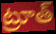
ట్రూత్